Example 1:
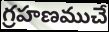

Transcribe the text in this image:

గ్రహణముచే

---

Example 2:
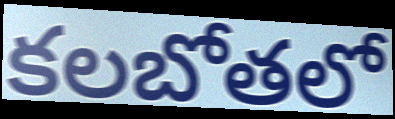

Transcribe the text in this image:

కలబోతలో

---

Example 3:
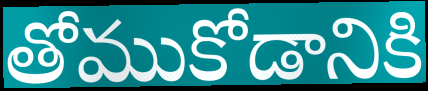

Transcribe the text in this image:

తోముకోడానికి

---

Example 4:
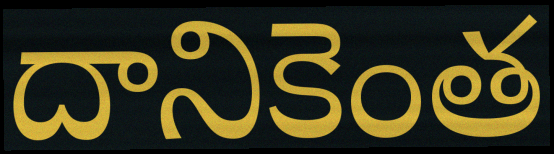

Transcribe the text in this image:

దానికెంత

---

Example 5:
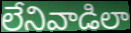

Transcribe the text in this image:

లేనివాడిలా